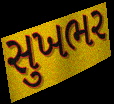
સુખભર